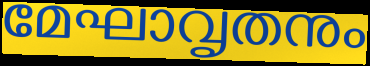
മേഘാവൃതനും